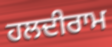
ਹਲਦੀਰਾਮ